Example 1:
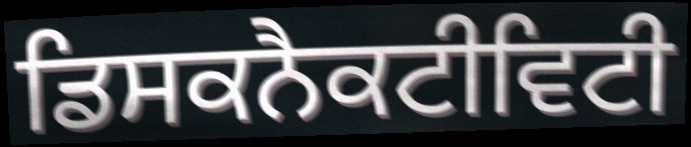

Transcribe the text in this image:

ਡਿਸਕਨੈਕਟੀਵਿਟੀ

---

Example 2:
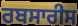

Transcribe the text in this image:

ਰਬਸਾਰੀਸ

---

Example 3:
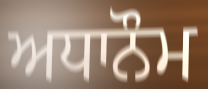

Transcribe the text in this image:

ਅਧਾਨੌਮ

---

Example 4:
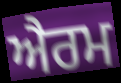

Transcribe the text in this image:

ਐਰਮ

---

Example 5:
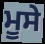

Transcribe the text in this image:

ਮੂਸੇ